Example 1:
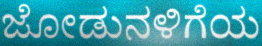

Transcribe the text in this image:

ಜೋಡುನಳಿಗೆಯ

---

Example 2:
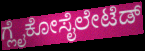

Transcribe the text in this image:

ಗ್ಲೈಕೋಸೈಲೇಟೆಡ್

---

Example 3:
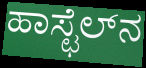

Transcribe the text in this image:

ಹಾಸ್ಟೆಲ್‌ನ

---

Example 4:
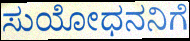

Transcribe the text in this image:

ಸುಯೋಧನನಿಗೆ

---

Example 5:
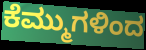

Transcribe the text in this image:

ಕೆಮ್ಮುಗಳಿಂದ